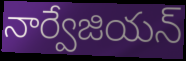
నార్వేజియన్